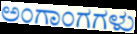
ಅಂಗಾಂಗಗಳು